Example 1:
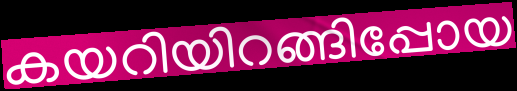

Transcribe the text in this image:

കയറിയിറങ്ങിപ്പോയ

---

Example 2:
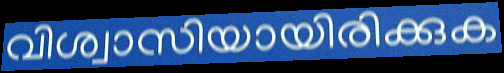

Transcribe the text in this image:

വിശ്വാസിയായിരിക്കുക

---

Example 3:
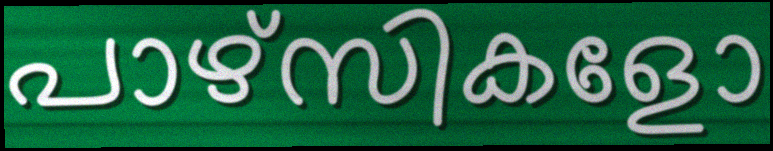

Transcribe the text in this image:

പാഴ്സികളോ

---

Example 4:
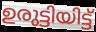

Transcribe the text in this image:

ഉരുട്ടിയിട്ട്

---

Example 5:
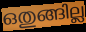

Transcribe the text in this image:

ഒതുങ്ങില്ല